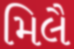
મિલૈ